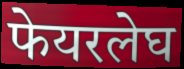
फेयरलेघ